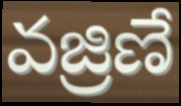
వజ్రిణే